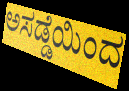
ಅಸಡ್ಡೆಯಿಂದ